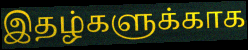
இதழ்களுக்காக